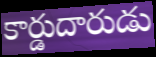
కార్డుదారుడు